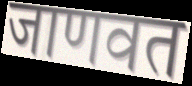
जाणवत